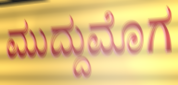
ಮುದ್ದುಮೊಗ